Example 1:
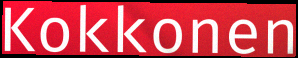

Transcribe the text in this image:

Kokkonen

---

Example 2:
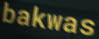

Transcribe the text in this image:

bakwas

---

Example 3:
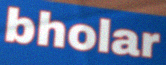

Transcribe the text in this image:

bholar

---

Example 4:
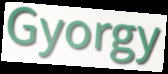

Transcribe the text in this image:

Gyorgy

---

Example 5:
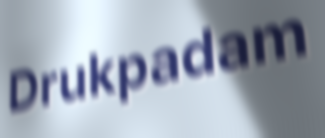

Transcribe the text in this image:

Drukpadam